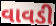
વાવડી